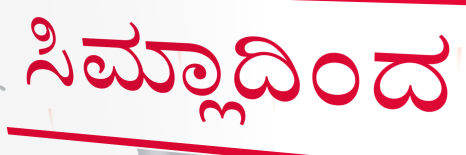
ಸಿಮ್ಲಾದಿಂದ